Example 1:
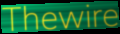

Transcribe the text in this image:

Thewire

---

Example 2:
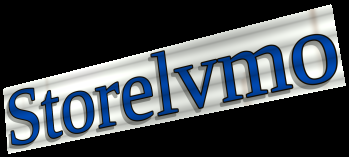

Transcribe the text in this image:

Storelvmo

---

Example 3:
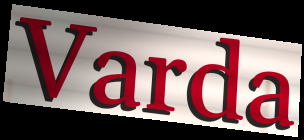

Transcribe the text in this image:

Varda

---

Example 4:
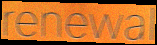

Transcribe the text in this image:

renewal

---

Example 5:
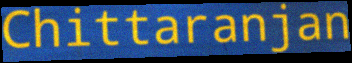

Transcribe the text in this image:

Chittaranjan